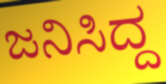
ಜನಿಸಿದ್ದ